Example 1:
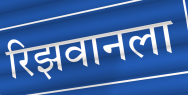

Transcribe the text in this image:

रिझवानला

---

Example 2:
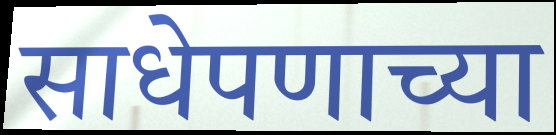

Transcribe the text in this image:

साधेपणाच्या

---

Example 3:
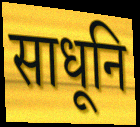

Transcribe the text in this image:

साधूनि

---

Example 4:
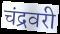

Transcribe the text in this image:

चंद्रवरी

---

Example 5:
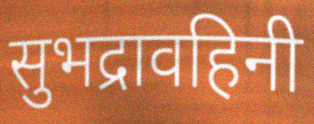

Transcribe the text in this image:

सुभद्रावहिनी